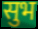
सुभ